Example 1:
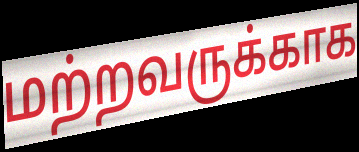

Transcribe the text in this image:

மற்றவருக்காக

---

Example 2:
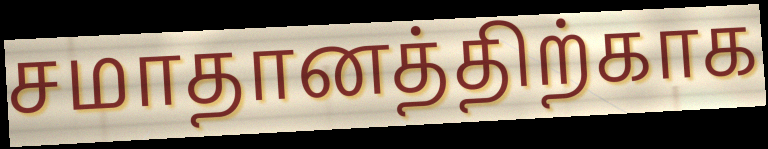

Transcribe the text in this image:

சமாதானத்திற்காக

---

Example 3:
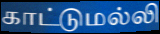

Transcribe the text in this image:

காட்டுமல்லி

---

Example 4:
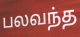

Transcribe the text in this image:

பலவந்த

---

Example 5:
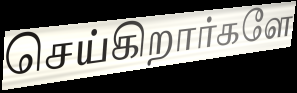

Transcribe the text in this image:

செய்கிறார்களே